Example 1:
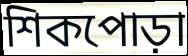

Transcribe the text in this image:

শিকপোড়া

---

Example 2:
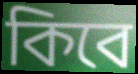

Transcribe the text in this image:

কিবে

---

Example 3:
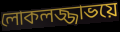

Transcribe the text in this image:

লোকলজ্জাভয়ে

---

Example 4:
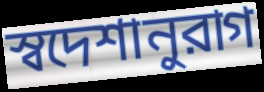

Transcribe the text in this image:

স্বদেশানুরাগ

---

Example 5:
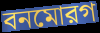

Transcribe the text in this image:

বনমোরগ